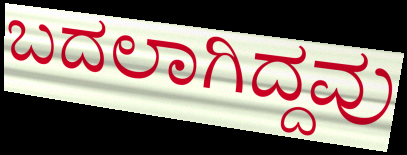
ಬದಲಾಗಿದ್ದವು